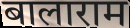
बालाराम